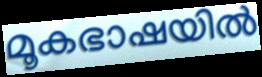
മൂകഭാഷയിൽ